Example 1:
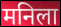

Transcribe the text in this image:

मनिला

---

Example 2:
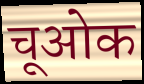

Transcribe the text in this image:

चूओक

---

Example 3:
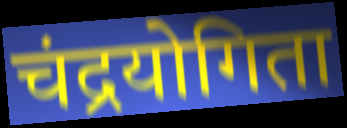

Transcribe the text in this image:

चंद्रयोगिता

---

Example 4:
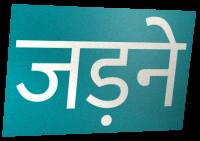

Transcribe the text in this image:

जड़ने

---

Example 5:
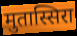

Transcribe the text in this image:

मुतास्सिरा